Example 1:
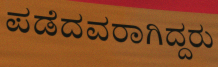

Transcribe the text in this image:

ಪಡೆದವರಾಗಿದ್ದರು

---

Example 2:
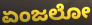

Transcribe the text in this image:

ಏಂಜಲೋ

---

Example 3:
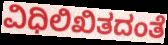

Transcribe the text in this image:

ವಿಧಿಲಿಖಿತದಂತೆ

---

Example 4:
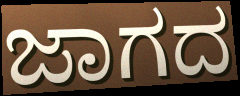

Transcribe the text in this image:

ಜಾಗದ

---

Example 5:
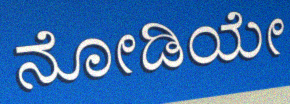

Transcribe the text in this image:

ನೋಡಿಯೇ